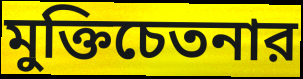
মুক্তিচেতনার